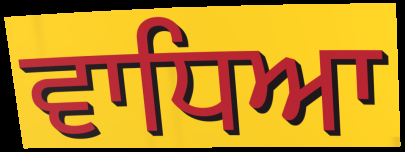
ਵਾਧਿਆ